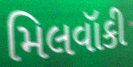
મિલવૉકી